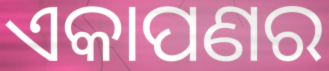
ଏକାପଣର